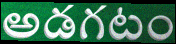
అడగటం